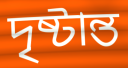
দৃষ্টান্ত